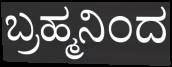
ಬ್ರಹ್ಮನಿಂದ